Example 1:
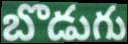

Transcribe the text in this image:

బొడుగు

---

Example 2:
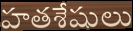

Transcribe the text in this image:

హతశేషులు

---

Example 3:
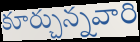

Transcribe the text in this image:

కూర్చున్నవారి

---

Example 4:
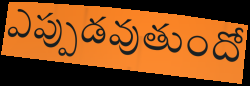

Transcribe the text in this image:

ఎప్పుడవుతుందో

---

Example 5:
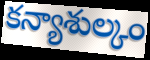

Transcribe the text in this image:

కన్యాశుల్కం